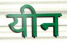
यीन